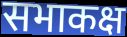
सभाकक्ष